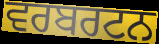
ਵਰਬਰਟਨ